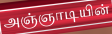
அஞ்ஞாடியின்